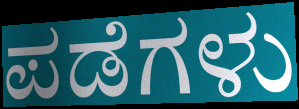
ಪಡೆಗಳು